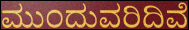
ಮುಂದುವರಿದಿವೆ